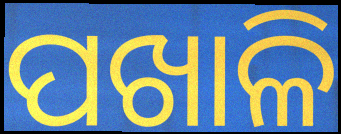
ପଖାଳି